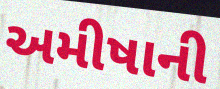
અમીષાની